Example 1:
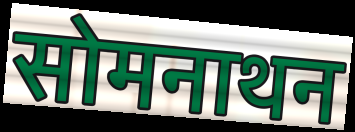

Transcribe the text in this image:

सोमनाथन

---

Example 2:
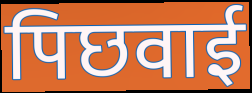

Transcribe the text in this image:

पिछवाई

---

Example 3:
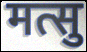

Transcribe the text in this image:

मत्सु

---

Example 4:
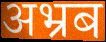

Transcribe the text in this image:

अभ्रब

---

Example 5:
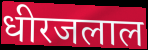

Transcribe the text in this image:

धीरजलाल